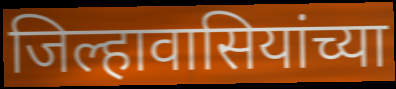
जिल्हावासियांच्या